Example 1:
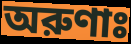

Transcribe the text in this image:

অরুণাঃ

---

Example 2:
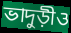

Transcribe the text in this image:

ভাদুড়ীও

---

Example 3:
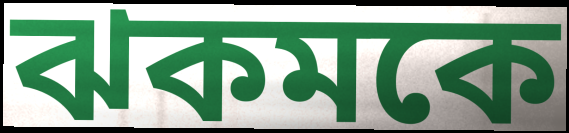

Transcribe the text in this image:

ঝকমকে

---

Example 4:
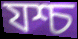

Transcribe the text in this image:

যশ্চ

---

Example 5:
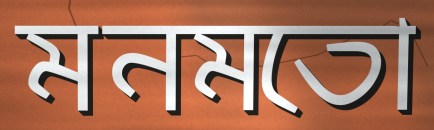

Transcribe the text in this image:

মনমতো